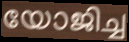
യോജിച്ച